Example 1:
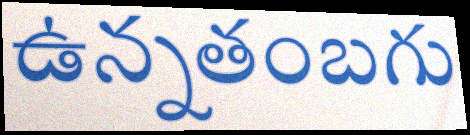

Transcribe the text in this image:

ఉన్నతంబగు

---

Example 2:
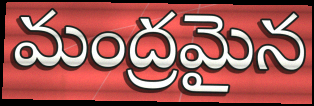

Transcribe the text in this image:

మంద్రమైన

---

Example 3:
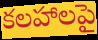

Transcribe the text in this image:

కలహాలపై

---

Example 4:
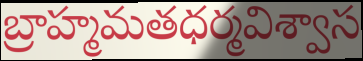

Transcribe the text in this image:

బ్రాహ్మమతధర్మవిశ్వాస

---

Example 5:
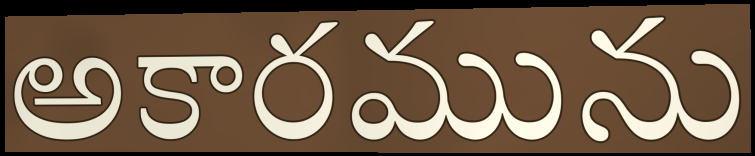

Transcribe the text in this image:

అకారమును